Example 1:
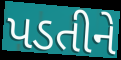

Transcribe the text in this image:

પડતીને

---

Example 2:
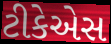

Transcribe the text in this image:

ટીકેએસ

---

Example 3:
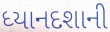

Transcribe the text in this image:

ધ્યાનદશાની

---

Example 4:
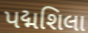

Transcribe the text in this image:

પદ્મશિલા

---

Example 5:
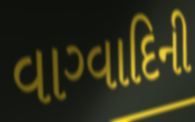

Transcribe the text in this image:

વાગ્વાદિની